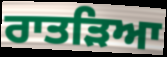
ਰਾਤੜਿਆ